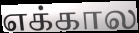
எக்கால